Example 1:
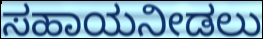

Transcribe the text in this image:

ಸಹಾಯನೀಡಲು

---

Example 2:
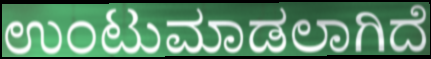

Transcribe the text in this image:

ಉಂಟುಮಾಡಲಾಗಿದೆ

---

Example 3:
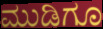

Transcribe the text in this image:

ಮುಡಿಗೂ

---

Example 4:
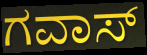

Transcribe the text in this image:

ಗವಾಸ್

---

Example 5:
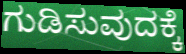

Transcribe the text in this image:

ಗುಡಿಸುವುದಕ್ಕೆ